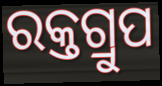
ରକ୍ତଗ୍ରୁପ